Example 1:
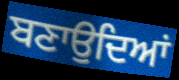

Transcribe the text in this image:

ਬਣਾਉਦਿਆਂ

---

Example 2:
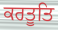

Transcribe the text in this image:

ਕਰਤੂਤਿ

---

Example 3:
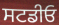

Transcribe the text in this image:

ਸਟਡੀਓ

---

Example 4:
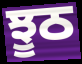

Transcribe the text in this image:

ਝੂਠ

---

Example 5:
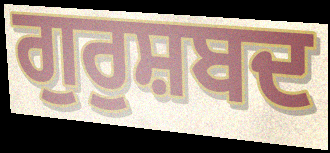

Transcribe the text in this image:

ਗੁਰੁਸ਼ਬਦ